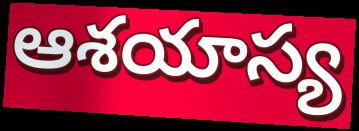
ఆశయాస్య